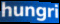
hungri